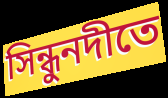
সিন্ধুনদীতে